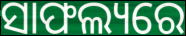
ସାଫଲ୍ୟରେ